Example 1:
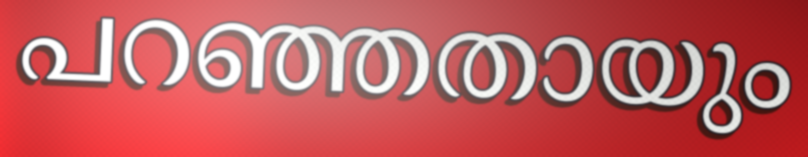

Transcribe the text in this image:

പറഞ്ഞതായും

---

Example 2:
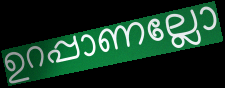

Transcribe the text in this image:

ഉറപ്പാണല്ലോ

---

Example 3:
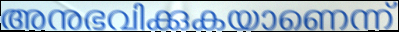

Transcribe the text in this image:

അനുഭവിക്കുകയാണെന്ന്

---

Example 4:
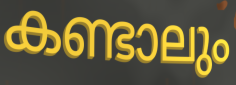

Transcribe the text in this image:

കണ്ടാലും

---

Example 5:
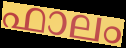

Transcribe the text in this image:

ഫാലം